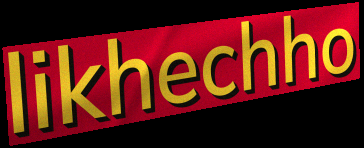
likhechho